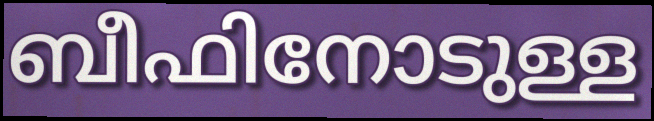
ബീഫിനോടുള്ള